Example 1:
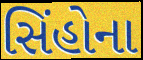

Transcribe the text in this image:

સિંહોના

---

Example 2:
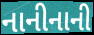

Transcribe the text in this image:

નાનીનાની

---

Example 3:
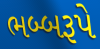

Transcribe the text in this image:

ભબ્બરૂપે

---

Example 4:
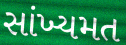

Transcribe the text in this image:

સાંખ્યમત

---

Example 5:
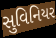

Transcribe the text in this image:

સુવિનિયર